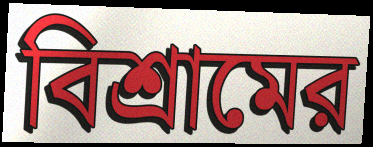
বিশ্রামের